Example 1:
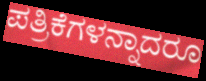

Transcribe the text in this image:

ಪತ್ರಿಕೆಗಳನ್ನಾದರೂ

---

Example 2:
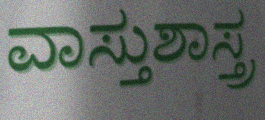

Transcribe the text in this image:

ವಾಸ್ತುಶಾಸ್ತ್ರ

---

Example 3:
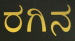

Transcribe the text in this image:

ರಗಿನ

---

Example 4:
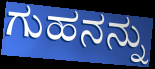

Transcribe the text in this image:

ಗುಹನನ್ನು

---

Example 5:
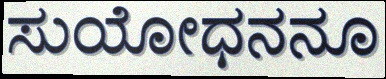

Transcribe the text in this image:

ಸುಯೋಧನನೂ